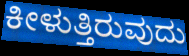
ಕೀಳುತ್ತಿರುವುದು